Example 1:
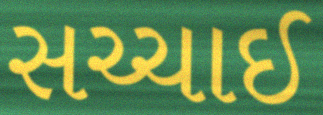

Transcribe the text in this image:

સચ્ચાઈ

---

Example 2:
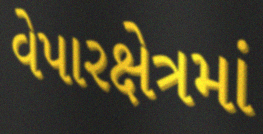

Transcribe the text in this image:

વેપારક્ષેત્રમાં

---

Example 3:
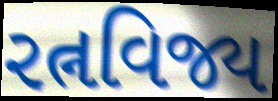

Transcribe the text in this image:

રત્નવિજ્ય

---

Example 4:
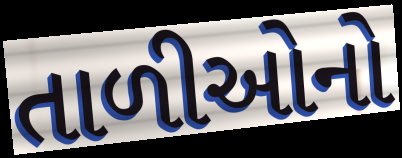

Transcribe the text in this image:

તાળીઓનો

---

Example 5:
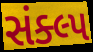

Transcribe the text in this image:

સંક્લ્પ